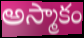
అస్మాకం